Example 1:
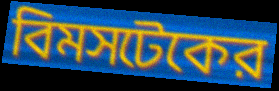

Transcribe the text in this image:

বিমসটেকের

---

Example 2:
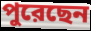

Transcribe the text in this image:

পুরেছেন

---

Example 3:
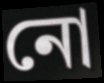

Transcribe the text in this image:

নো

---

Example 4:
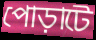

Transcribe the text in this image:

পোড়াটে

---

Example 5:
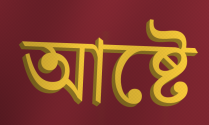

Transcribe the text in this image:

আষ্টে